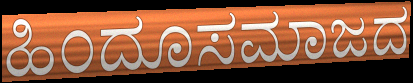
ಹಿಂದೂಸಮಾಜದ